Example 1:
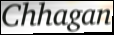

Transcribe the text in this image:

Chhagan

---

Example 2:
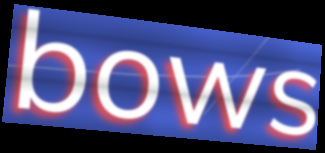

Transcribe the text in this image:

bows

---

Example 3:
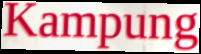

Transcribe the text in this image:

Kampung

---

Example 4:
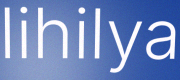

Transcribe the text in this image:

lihilya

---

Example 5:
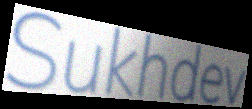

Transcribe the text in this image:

Sukhdev